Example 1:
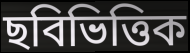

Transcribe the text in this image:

ছবিভিত্তিক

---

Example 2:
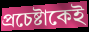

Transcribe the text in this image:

প্রচেষ্টাকেই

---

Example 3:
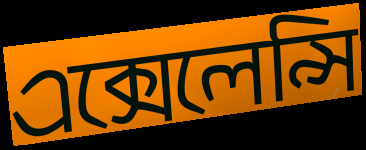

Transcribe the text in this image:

এক্সেলেন্সি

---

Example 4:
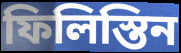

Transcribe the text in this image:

ফিলিস্তিন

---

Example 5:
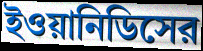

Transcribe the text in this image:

ইওয়ানিডিসের